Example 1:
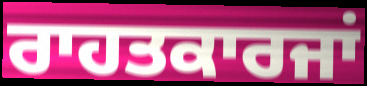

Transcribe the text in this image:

ਰਾਹਤਕਾਰਜਾਂ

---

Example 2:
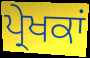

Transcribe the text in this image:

ਪ੍ਰੇਖਕਾਂ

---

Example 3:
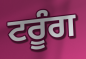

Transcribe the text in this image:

ਟਰੂੰਗ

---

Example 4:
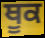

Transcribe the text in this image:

ਥੂਕ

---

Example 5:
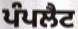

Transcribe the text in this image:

ਪੰਪਲੈਟ